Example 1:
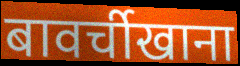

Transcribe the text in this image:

बावर्चीखाना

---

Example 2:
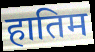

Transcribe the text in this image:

हातिम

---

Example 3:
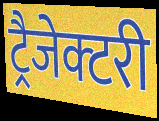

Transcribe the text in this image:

ट्रैजेक्‍टरी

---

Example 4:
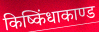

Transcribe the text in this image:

किष्किंधाकाण्ड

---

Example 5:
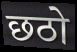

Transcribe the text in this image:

छठो